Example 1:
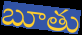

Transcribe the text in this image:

బూతు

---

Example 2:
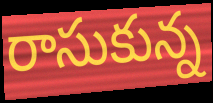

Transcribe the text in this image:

రాసుకున్న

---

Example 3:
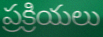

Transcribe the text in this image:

ప్రక్రియలు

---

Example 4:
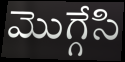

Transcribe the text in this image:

మొగ్గేసి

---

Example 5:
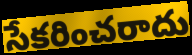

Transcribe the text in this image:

సేకరించరాదు